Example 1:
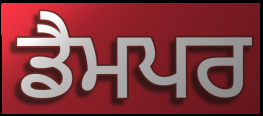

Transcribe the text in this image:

ਡੈਮਪਰ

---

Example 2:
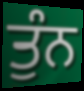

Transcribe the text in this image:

ਤੁੰਨ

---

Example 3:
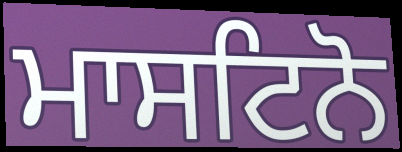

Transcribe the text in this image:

ਮਾਸਟਿਨੋ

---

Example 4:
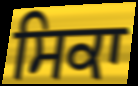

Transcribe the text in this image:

ਸਿਕਾ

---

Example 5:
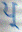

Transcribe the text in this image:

ਪ੍ਰ